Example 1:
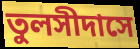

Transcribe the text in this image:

তুলসীদাসে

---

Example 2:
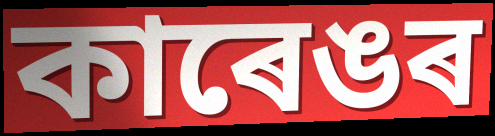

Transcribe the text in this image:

কাৰেঙৰ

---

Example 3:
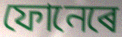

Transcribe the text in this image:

ফোনেৰে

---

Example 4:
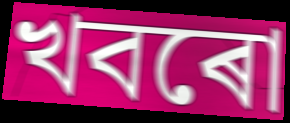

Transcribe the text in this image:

খবৰো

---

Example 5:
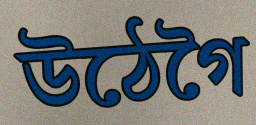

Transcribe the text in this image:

উঠেগৈ